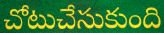
చోటుచేసుకుంది